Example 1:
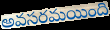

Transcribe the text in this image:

అవసరమయింది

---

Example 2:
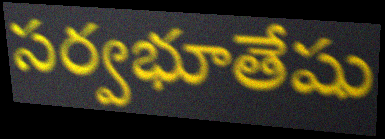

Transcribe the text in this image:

సర్వభూతేషు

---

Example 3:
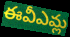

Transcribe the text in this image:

ఈవీఎమ్ల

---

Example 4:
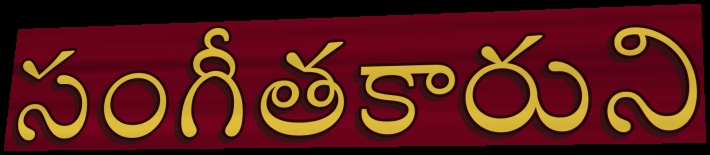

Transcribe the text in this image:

సంగీతకారుని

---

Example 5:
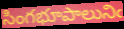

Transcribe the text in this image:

సింగభూపాలునిఁ